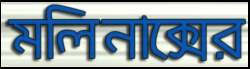
মলিনাক্সের